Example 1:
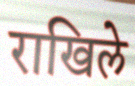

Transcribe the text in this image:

राखिले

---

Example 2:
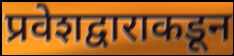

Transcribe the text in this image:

प्रवेशद्वाराकडून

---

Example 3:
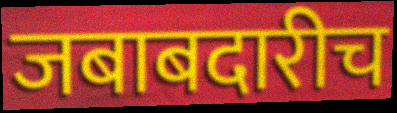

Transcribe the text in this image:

जबाबदारीच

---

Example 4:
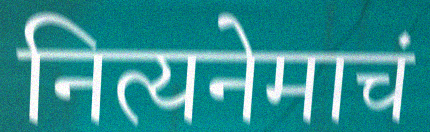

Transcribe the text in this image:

नित्यनेमाचं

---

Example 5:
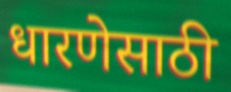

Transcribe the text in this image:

धारणेसाठी